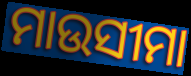
ମାଉସୀମା